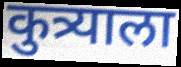
कुत्र्याला